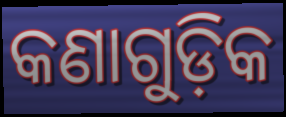
କଣାଗୁଡ଼ିକ